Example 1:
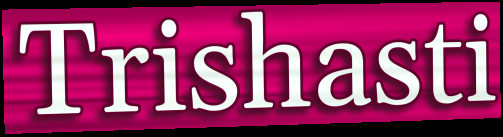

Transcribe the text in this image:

Trishasti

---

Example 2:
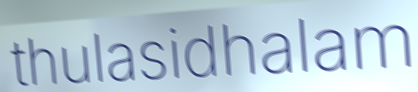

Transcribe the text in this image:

thulasidhalam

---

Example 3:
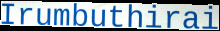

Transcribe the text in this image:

Irumbuthirai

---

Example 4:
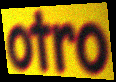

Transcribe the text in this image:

otro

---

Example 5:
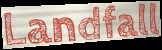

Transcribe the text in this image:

Landfall